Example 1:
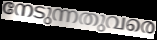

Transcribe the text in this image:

നേടുന്നതുവരെ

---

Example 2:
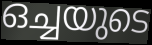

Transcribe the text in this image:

ഒച്ചയുടെ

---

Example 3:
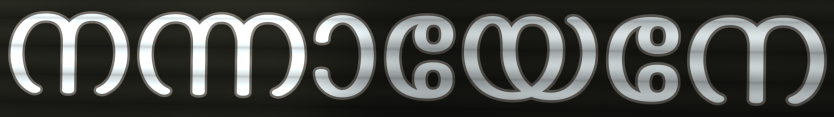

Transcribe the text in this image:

നന്നായേനേ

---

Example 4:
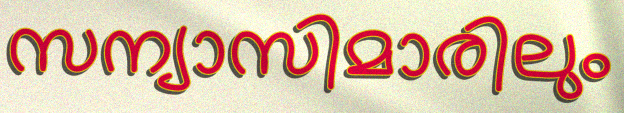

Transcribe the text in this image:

സന്യാസിമാരിലും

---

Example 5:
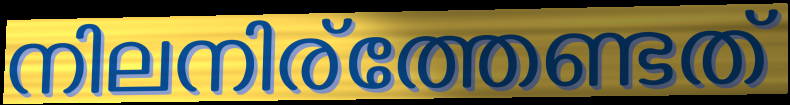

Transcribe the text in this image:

നിലനിര്ത്തേണ്ടത്